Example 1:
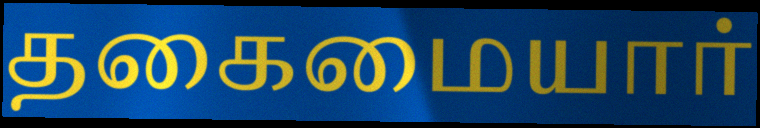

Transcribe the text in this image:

தகைமையார்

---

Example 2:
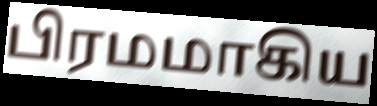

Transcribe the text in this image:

பிரமமாகிய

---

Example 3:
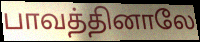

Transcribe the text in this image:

பாவத்தினாலே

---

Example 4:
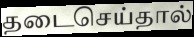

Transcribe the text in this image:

தடைசெய்தால்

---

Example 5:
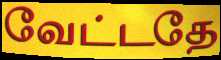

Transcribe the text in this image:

வேட்டதே